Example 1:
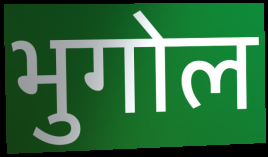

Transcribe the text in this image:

भुगोल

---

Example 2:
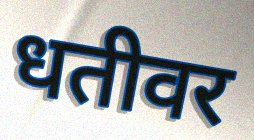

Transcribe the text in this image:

धतीवर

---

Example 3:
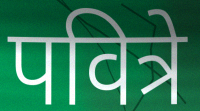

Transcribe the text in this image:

पवित्रे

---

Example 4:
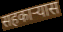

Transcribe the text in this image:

सहकार्‍यास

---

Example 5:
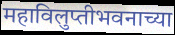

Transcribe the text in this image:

महाविलुप्तीभवनाच्या